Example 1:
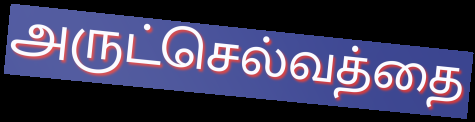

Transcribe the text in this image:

அருட்செல்வத்தை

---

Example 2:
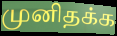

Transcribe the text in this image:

முனிதக்க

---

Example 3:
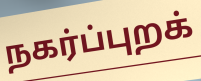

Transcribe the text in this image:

நகர்ப்புறக்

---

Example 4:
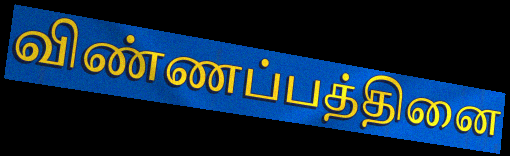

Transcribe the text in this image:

விண்ணப்பத்தினை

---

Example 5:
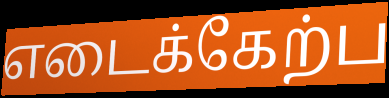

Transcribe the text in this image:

எடைக்கேற்ப